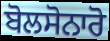
ਬੋਲਸੋਨਾਰੋ